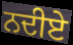
ਨਦੀਏ